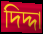
দিদ্দা